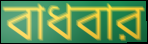
বাধবার